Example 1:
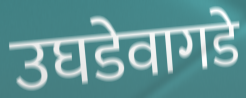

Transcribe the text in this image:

उघडेवागडे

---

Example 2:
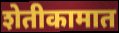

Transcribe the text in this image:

शेतीकामात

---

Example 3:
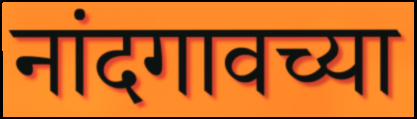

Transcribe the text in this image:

नांदगावच्या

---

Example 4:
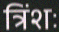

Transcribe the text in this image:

त्रिंशः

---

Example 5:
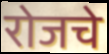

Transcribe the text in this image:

रोजचे